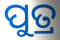
ପୁତ୍ର